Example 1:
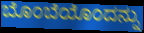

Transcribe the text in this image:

ಬೊಂಬೆಯೊಂದನ್ನು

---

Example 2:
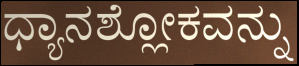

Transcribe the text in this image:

ಧ್ಯಾನಶ್ಲೋಕವನ್ನು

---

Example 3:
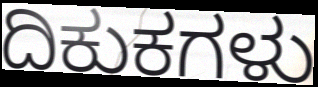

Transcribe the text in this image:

ದಿಕುಕಗಳು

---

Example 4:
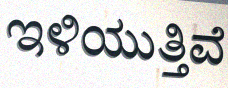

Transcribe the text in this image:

ಇಳಿಯುತ್ತಿವೆ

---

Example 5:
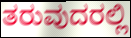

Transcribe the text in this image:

ತರುವುದರಲ್ಲಿ